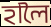
হালৈ